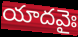
యాదవైః